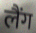
लैंग